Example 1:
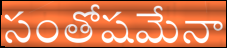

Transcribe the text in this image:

సంతోషమేనా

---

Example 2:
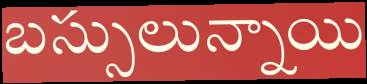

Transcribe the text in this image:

బస్సులున్నాయి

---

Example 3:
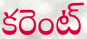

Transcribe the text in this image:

కరెంట్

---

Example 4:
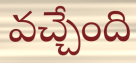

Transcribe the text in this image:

వచ్చేంది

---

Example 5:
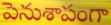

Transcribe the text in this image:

పెనుశాపంగా